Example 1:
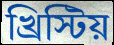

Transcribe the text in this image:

খ্রিস্টিয়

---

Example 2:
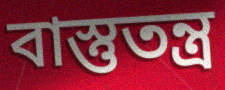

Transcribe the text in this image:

বাস্তুতন্ত্র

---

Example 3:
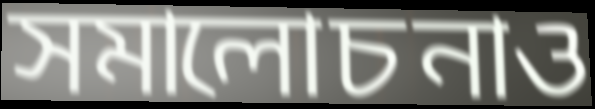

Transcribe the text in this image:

সমালোচনাও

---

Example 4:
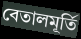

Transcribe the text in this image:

বেতালমূর্তি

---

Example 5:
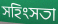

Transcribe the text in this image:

সহিংসতা